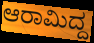
ಆರಾಮಿದ್ದ